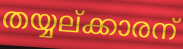
തയ്യല്ക്കാരന്